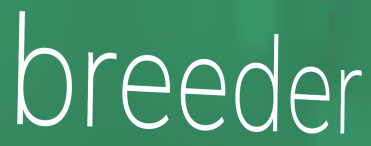
breeder